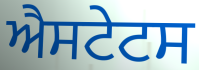
ਐਸਟੇਟਸ